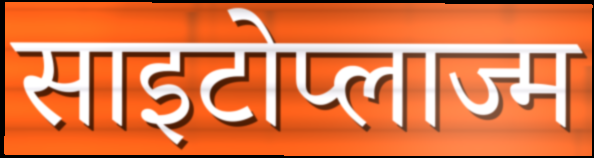
साइटोप्लाज्म